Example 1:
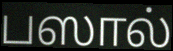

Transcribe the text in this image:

பஸால்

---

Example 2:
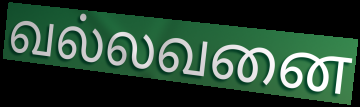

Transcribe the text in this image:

வல்லவனை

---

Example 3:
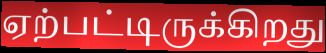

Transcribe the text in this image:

ஏற்பட்டிருக்கிறது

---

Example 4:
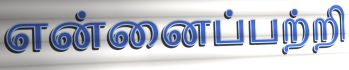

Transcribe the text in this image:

என்னைப்பற்றி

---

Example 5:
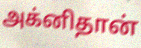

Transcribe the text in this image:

அக்னிதான்